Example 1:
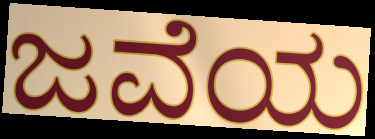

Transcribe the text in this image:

ಜವೆಯ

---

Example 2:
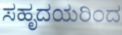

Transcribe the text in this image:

ಸಹೃದಯರಿಂದ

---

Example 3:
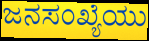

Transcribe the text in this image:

ಜನಸಂಖ್ಯೆಯು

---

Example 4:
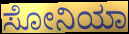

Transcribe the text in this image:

ಸೋನಿಯಾ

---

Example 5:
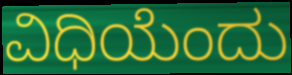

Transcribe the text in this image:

ವಿಧಿಯೆಂದು